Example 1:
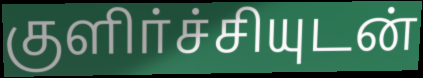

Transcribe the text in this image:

குளிர்ச்சியுடன்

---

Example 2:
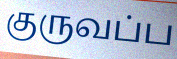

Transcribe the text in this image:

குருவப்ப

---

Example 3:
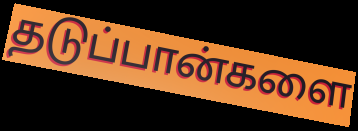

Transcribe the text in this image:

தடுப்பான்களை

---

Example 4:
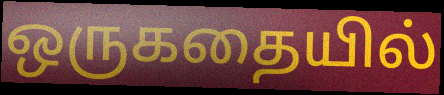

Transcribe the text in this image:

ஒருகதையில்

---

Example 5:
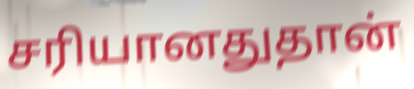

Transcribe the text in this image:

சரியானதுதான்